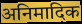
अनिमादिक